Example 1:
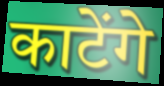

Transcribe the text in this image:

काटेंगे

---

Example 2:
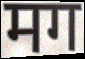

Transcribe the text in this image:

मग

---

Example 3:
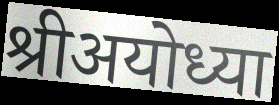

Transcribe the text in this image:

श्रीअयोध्या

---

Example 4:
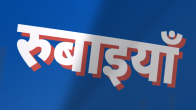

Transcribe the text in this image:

रुबाइयाँ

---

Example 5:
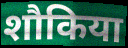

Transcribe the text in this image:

शौकिया